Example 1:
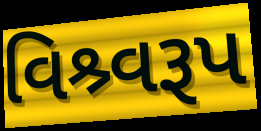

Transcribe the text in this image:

વિશ્ર્વરૂપ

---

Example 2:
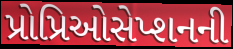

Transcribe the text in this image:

પ્રોપ્રિઓસેપ્શનની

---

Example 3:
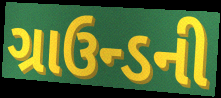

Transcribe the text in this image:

ગ્રાઉન્ડની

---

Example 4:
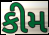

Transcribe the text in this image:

કીમ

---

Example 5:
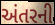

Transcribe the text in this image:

અંતરની